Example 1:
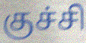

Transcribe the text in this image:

குச்சி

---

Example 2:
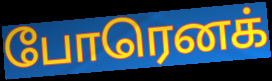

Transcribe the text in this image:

போரெனக்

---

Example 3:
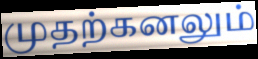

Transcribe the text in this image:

முதற்கனலும்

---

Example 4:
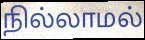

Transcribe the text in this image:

நில்லாமல்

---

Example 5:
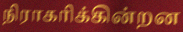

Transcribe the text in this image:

நிராகரிக்கின்றன